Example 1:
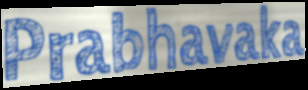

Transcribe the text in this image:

Prabhavaka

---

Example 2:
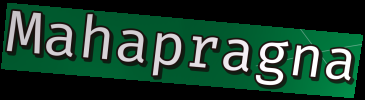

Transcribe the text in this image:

Mahapragna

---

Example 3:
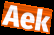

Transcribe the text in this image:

Aek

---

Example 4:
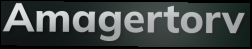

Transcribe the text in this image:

Amagertorv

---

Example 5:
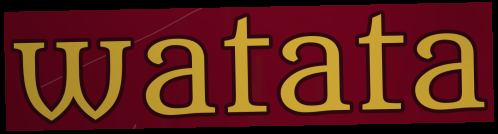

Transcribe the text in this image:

watata